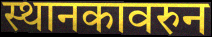
स्थानकावरुन